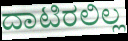
ದಾಟಿರಲಿಲ್ಲ